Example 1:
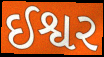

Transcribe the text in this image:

ઈશ્વર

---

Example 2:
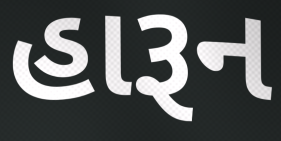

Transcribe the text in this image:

હારૂન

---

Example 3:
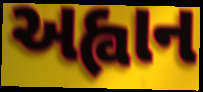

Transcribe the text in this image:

અહ્વાન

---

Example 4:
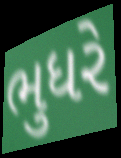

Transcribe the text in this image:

ભુધરે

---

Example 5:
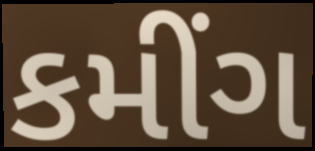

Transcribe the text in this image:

કમીંગ